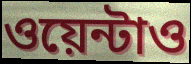
ওয়েন্টাও